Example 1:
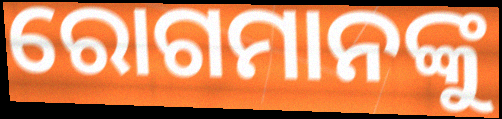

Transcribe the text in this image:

ରୋଗମାନଙ୍କୁ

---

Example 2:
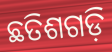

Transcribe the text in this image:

ଛତିଶଗଡ଼ି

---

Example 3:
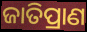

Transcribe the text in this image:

ଜାତିପ୍ରାଣ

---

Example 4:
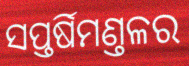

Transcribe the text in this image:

ସପ୍ତର୍ଷିମଣ୍ତଳର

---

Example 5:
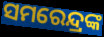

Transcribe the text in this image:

ସମରେନ୍ଦ୍ରଙ୍କ